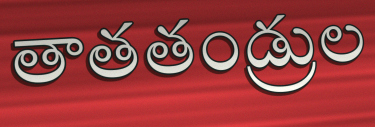
తాతతండ్రుల